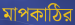
মাপকাঠির